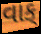
વાક્